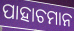
ପାହାଚମାନ